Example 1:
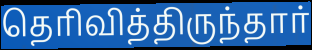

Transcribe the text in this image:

தெரிவித்திருந்தார்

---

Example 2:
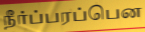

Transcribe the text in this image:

நீர்ப்பரப்பென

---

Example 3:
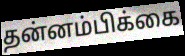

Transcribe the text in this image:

தன்னம்பிக்கை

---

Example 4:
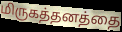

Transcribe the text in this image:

மிருகத்தனத்தை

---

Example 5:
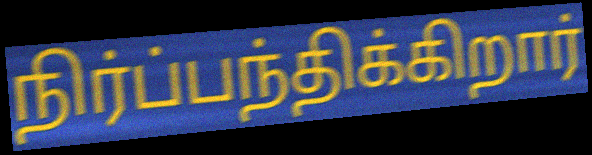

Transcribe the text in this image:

நிர்ப்பந்திக்கிறார்